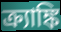
ক্র্যাঙ্কি